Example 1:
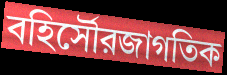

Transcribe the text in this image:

বহির্সৌরজাগতিক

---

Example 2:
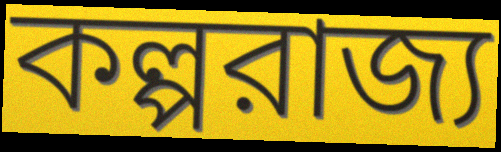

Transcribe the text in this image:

কল্পরাজ্য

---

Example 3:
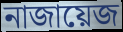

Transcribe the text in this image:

নাজায়েজ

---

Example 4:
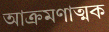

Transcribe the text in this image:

আক্রমণাত্মক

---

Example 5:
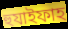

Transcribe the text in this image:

হুযাইফাহ